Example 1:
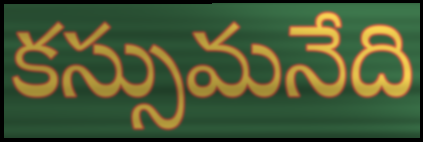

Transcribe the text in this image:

కస్సుమనేది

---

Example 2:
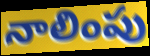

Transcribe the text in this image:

నాలింపు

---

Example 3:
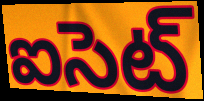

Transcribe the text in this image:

ఐసెట్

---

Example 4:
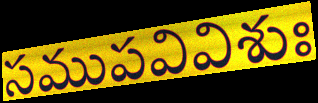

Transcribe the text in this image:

సముపవివిశుః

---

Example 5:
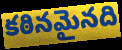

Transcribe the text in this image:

కఠినమైనది